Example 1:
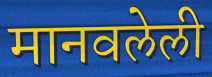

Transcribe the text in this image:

मानवलेली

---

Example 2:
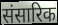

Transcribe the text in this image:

संसारिक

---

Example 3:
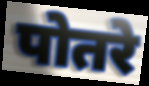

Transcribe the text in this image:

पोतरे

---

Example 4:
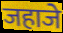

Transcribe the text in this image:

जहाजे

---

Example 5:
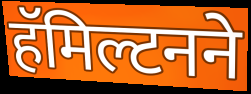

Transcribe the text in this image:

हॅमिल्टनने